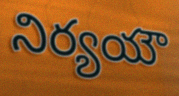
నిర్యయౌ